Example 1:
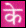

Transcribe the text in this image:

के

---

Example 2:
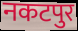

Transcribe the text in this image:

नकटपुर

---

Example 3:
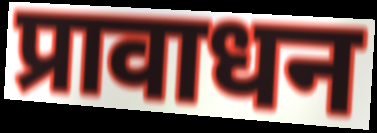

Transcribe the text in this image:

प्रावाधन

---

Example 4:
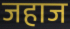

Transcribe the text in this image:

जहाज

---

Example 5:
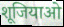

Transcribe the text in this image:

शूजियाओ